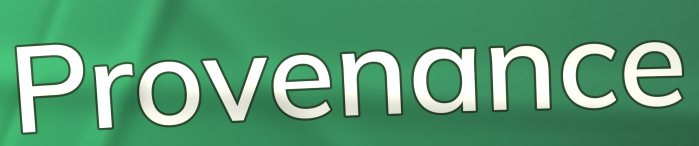
Provenance